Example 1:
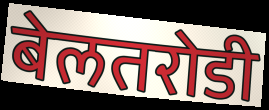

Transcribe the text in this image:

बेलतरोडी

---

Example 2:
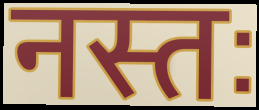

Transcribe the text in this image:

नस्तः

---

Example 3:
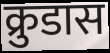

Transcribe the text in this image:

क्रुडास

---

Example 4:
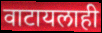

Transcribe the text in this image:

वाटायलाही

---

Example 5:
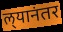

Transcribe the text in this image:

ल्यानंतर